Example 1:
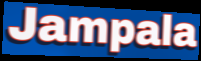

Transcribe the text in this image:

Jampala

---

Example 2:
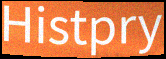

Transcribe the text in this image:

Histpry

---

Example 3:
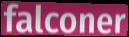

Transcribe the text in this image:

falconer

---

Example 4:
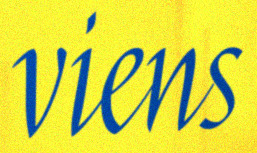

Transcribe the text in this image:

viens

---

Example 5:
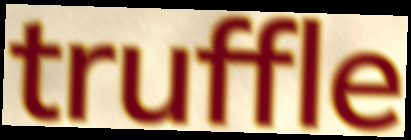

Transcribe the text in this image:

truffle